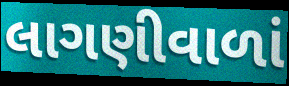
લાગણીવાળાં